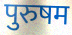
पुरुषम